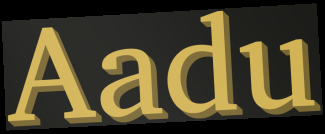
Aadu